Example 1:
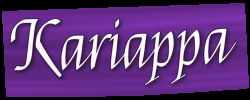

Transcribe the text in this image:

Kariappa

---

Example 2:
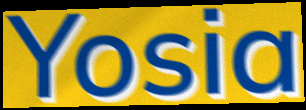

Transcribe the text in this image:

Yosia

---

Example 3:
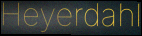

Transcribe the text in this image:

Heyerdahl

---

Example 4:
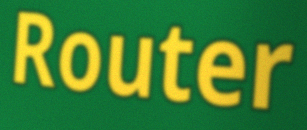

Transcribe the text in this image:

Router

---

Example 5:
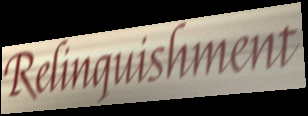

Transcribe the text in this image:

Relinquishment